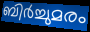
ബിർച്ചുമരം